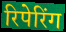
रिपेरिंग